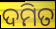
ଦମିତ